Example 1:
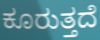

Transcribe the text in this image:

ಕೂರುತ್ತದೆ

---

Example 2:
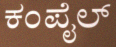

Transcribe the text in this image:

ಕಂಪೈಲ್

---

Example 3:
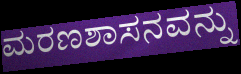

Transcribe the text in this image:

ಮರಣಶಾಸನವನ್ನು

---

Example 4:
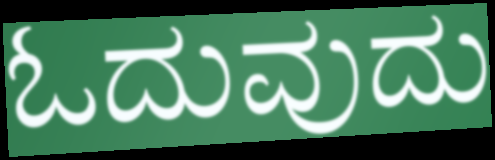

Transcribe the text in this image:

ಓದುವುದು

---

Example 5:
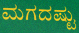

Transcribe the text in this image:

ಮಗದಷ್ಟು